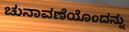
ಚುನಾವಣೆಯೊಂದನ್ನು